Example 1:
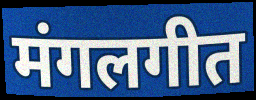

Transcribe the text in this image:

मंगलगीत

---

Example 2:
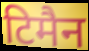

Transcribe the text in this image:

टिमैन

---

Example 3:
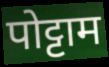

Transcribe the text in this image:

पोट्टाम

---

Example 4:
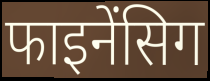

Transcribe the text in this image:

फाइनेंसिग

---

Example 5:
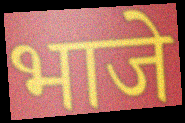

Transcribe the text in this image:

भाजे